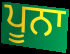
ਪੂਨਾ